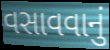
વસાવવાનું